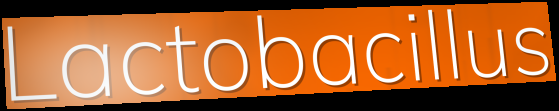
Lactobacillus